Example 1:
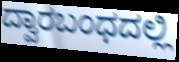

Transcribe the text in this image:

ದ್ವಾರಬಂಧದಲ್ಲಿ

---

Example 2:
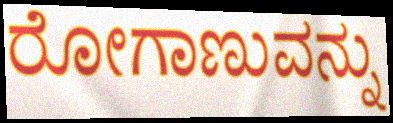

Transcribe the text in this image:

ರೋಗಾಣುವನ್ನು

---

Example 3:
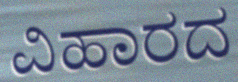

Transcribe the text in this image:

ವಿಹಾರದ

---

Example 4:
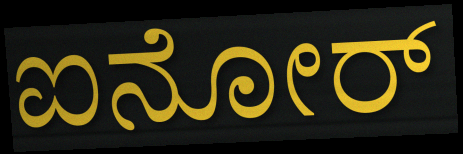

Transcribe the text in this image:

ಐನೋರ್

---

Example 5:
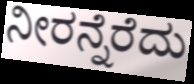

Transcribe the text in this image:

ನೀರನ್ನೆರೆದು